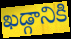
ఖడ్గానికి